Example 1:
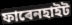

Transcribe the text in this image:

ফাৰেনহাইট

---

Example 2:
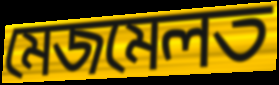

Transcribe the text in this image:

মেজমেলত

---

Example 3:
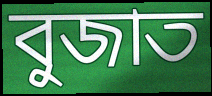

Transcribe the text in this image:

বুজাত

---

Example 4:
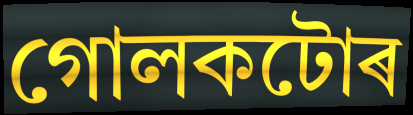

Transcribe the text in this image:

গোলকটোৰ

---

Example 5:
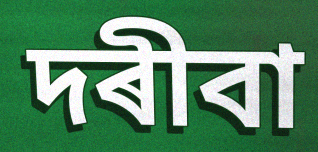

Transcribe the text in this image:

দৰীবা